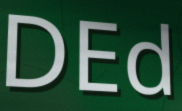
DEd